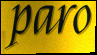
paro